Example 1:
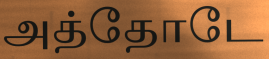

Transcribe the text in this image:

அத்தோடே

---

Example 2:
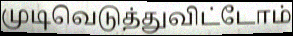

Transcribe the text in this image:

முடிவெடுத்துவிட்டோம்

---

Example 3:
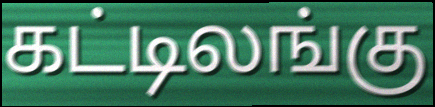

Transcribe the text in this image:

கட்டிலங்கு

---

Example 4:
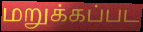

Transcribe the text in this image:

மறுக்கப்பட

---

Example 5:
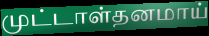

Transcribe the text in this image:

முட்டாள்தனமாய்